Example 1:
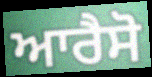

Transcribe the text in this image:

ਆਰੈਸੋ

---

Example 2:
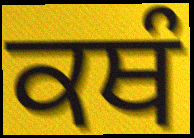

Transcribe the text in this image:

ਕਥੰ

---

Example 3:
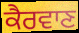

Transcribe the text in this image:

ਕੈਰਵਾਣ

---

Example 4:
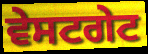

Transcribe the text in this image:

ਵੇਸਟਗੇਟ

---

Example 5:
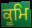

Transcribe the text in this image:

ਕੂਮਿ